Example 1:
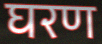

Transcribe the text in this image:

घरण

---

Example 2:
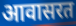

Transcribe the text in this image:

आवासरत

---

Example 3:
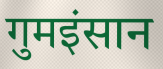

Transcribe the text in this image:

गुमइंसान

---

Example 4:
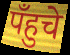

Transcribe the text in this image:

पँहुचे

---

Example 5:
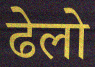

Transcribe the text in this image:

ढेलो